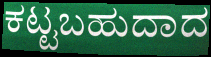
ಕಟ್ಟಬಹುದಾದ